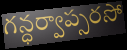
గన్ధర్వాప్సరసో